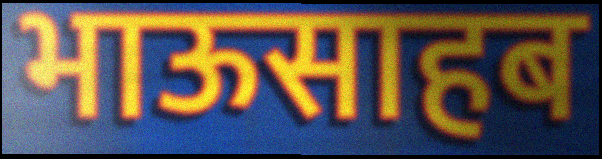
भाऊसाहब